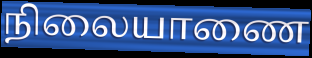
நிலையாணை